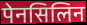
पेनसिलिन